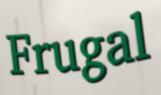
Frugal